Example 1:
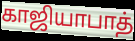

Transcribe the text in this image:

காஜியாபாத்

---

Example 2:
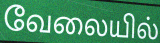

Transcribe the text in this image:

வேலையில்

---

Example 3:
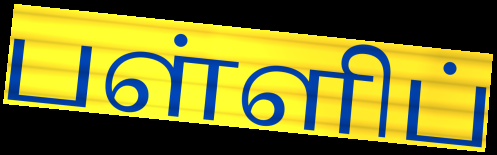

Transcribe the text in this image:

பள்ளிப்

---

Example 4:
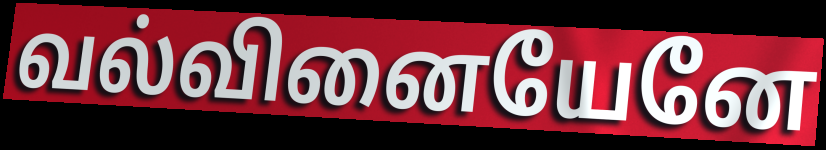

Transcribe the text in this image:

வல்வினையேனே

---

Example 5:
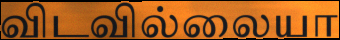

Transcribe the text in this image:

விடவில்லையா